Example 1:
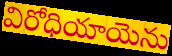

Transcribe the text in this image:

విరోధియాయెను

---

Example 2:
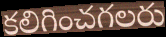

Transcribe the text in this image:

కలిగించగలరు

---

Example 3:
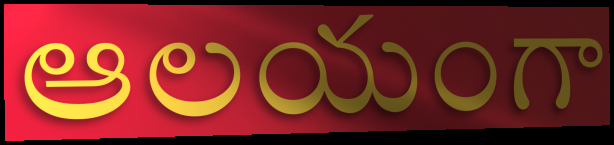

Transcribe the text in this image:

ఆలయంగా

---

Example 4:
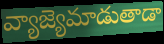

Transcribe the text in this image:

వ్యాజ్యెమాడుతాడా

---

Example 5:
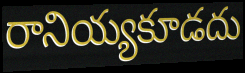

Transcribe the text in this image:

రానియ్యకూడదు